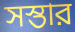
সস্তার